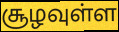
சூழவுள்ள